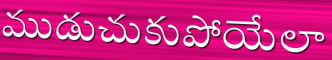
ముడుచుకుపోయేలా